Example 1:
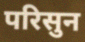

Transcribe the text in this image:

परिसुन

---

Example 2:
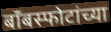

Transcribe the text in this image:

बॉंबस्फोटांच्या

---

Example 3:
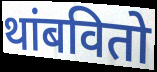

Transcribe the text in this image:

थांबवितो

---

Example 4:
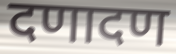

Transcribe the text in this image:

दणादण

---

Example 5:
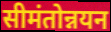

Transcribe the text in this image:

सीमंतोन्नयन